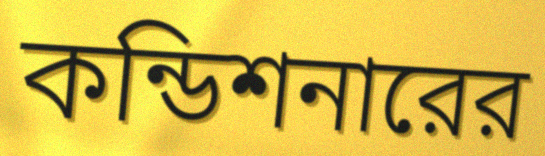
কন্ডিশনারের